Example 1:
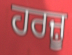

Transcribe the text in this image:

ਹਰਜ਼ੂ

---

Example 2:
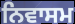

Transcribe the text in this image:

ਨਿਵਾਸਮ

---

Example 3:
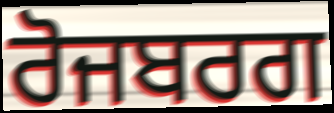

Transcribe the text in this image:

ਰੋਜਬਰਗ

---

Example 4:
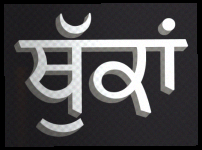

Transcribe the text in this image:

ਥੁੱਕਾਂ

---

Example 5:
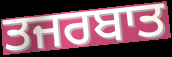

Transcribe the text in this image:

ਤਜਰਬਾਤ